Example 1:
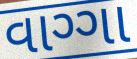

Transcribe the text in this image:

વાગ્ગા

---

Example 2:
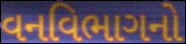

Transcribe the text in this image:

વનવિભાગનો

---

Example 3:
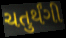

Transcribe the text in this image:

ચતુર્થંગી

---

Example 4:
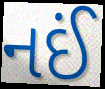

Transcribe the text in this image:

નઈં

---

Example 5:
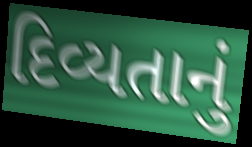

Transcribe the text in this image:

દિવ્યતાનું